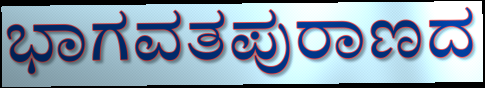
ಭಾಗವತಪುರಾಣದ